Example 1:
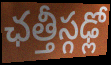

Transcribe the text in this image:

ఛత్తీస్గఢ్లో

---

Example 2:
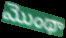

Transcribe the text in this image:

మొంథా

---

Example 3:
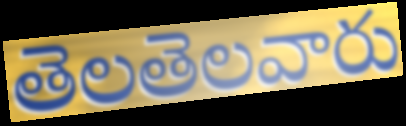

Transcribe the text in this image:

తెలతెలవారు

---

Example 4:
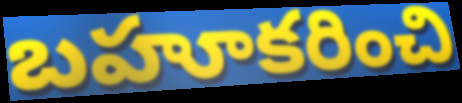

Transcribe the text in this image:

బహూకరించి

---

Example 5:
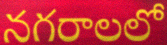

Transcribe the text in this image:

నగరాలలో